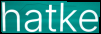
hatke